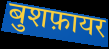
बुशफ़ायर